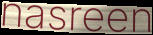
nasreen